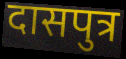
दासपुत्र